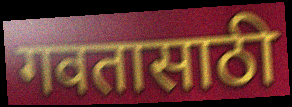
गवतासाठी